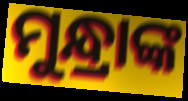
ମୁନ୍ଧ୍ରାଙ୍କ